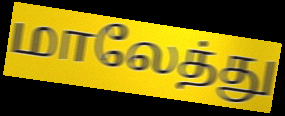
மாலேத்து